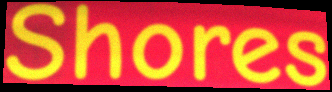
Shores